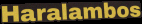
Haralambos